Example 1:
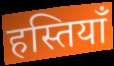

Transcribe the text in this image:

हस्तियॉं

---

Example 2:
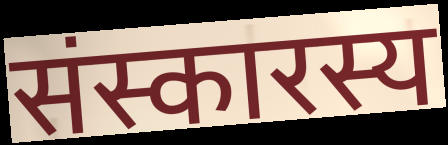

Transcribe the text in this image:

संस्कारस्य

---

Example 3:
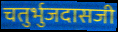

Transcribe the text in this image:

चतुर्भुजदासजी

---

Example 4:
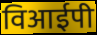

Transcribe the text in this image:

विआईपी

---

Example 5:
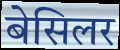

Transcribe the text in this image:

बेसिलर